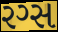
રગ્સ